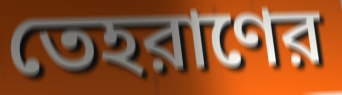
তেহরাণের